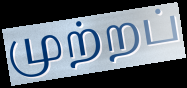
முற்றப்